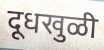
दूधखुळी